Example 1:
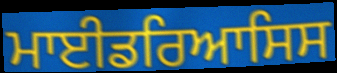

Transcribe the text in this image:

ਮਾਈਡਰਿਆਸਿਸ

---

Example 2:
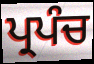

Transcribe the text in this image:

ਪ੍ਰਪੰਚ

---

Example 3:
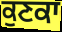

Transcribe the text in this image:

ਕੁਣਕਾ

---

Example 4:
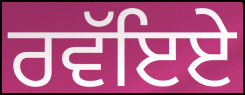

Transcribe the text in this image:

ਰਵੱਇਏ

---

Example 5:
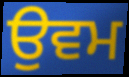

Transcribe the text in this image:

ਉਵਮ